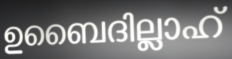
ഉബൈദില്ലാഹ്